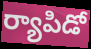
ర్యాపిడో